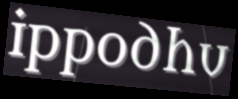
ippodhu